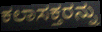
ಕಲಾಸಕ್ತರನ್ನು